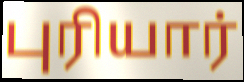
புரியார்